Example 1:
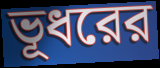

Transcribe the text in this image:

ভূধরের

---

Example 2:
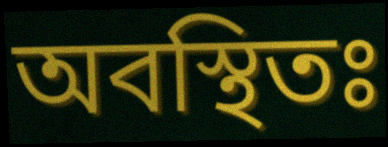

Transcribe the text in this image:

অবস্থিতঃ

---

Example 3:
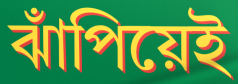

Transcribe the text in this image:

ঝাঁপিয়েই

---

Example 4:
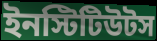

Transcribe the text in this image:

ইনস্টিটিউটস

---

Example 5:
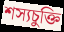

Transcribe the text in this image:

শস্যচুক্তি